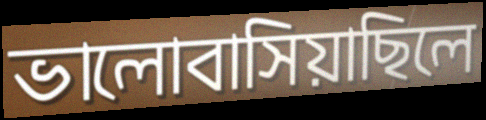
ভালোবাসিয়াছিলে